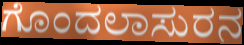
ಗೊಂದಲಾಸುರನ